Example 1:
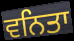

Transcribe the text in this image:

ਵਨਿਤਾ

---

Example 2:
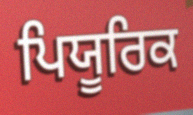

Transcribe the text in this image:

ਪਿਯੂਰਿਕ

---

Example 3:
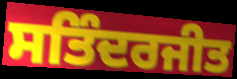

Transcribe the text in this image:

ਸਤਿੰਦਰਜੀਤ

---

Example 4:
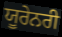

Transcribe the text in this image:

ਯੂਰੇਨਰੀ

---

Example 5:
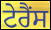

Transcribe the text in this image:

ਟੇਰੈਂਸ